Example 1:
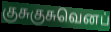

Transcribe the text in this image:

குசுகுசுவெனப்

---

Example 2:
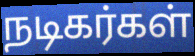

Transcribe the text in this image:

நடிகர்கள்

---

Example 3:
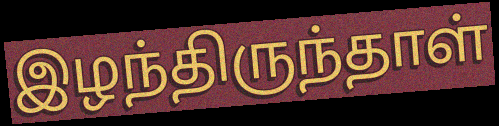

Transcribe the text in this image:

இழந்திருந்தாள்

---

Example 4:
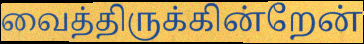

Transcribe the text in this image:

வைத்திருக்கின்றேன்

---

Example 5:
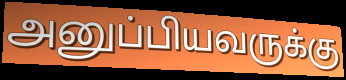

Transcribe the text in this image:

அனுப்பியவருக்கு